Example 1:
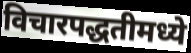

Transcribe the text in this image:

विचारपद्धतीमध्ये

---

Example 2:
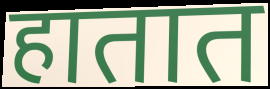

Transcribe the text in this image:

हातात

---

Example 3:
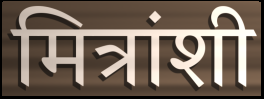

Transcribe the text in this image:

मित्रांशी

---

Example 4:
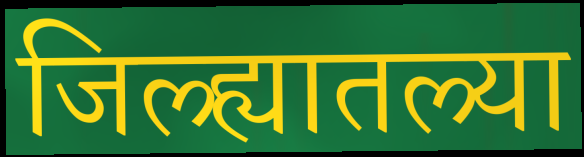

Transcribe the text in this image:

जिल्ह्यातल्या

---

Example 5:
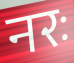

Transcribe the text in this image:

नरः